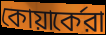
কোয়ার্কেরা